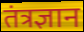
तंत्रज्ञान